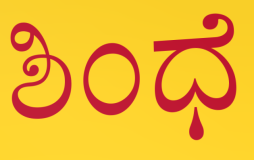
ಶಿಂಧೆ